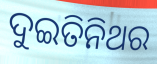
ଦୁଇତିନିଥର